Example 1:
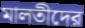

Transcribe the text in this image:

মালতীদের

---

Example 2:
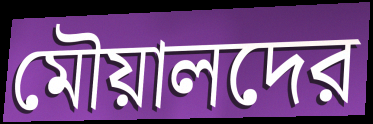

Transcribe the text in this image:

মৌয়ালদের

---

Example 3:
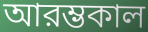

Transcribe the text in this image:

আরম্ভকাল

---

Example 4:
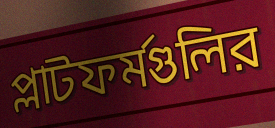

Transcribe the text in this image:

প্লাটফর্মগুলির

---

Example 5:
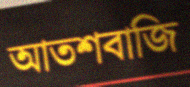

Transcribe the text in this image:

আতশবাজি